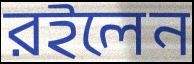
রইলেন